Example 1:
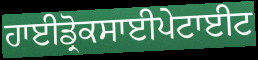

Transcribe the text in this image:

ਹਾਈਡ੍ਰੋਕਸਾਈਪੇਟਾਈਟ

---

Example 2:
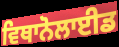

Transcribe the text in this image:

ਵਿਥਾਨੋਲਾਈਡ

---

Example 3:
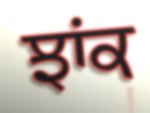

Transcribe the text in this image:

ਝਾਂਕ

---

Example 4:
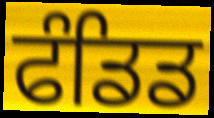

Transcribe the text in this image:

ਫੰਡਿਡ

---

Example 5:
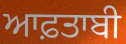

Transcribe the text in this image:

ਆਫ਼ਤਾਬੀ